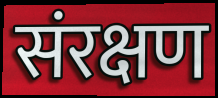
संरक्षण